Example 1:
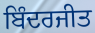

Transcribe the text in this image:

ਬਿੰਦਰਜੀਤ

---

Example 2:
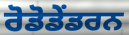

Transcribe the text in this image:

ਰੋਡੋਡੇਂਡਰਨ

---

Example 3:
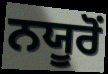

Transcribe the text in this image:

ਨਯੂਰੋਂ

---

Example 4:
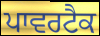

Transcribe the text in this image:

ਪਾਵਰਟੈਕ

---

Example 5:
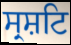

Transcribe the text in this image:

ਸ੍ਰਸ਼ਟਿ